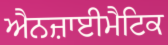
ਐਨਜ਼ਾਈਮੈਟਿਕ